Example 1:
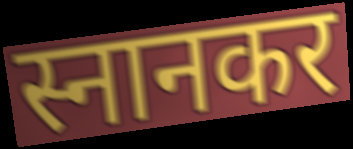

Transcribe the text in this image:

स्नानकर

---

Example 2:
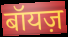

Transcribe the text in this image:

बॉयज़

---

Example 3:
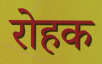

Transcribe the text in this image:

रोहक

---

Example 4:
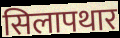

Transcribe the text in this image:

सिलापथार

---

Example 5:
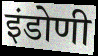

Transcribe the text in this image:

इंडोणी